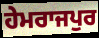
ਹੇਮਰਾਜਪੁਰ